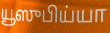
யூஸுபிய்யா